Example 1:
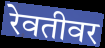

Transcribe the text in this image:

रेवतीवर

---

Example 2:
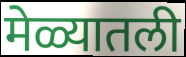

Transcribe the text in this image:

मेळ्यातली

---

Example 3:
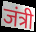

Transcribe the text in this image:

जंत्री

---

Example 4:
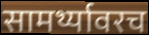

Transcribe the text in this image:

सामर्थ्यावरच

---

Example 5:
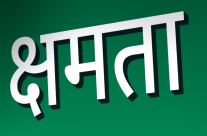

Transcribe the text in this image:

क्षमता